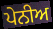
ਪੇਨੀਅ